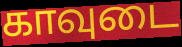
காவுடை